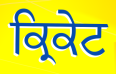
ਕ੍ਰਿਕੇਟ